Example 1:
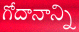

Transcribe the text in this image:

గోదానాన్ని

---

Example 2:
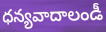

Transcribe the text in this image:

ధన్యవాదాలండీ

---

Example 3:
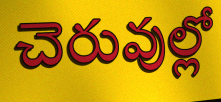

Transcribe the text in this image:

చెరువుల్లో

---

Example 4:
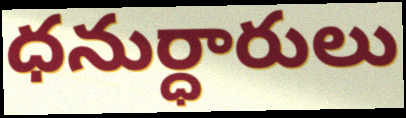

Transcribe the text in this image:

ధనుర్ధారులు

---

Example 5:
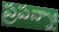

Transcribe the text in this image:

ప్రపన్నాః